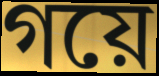
গয়ে